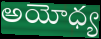
అయోధ్య